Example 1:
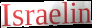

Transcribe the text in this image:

Israelin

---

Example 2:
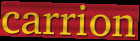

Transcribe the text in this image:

carrion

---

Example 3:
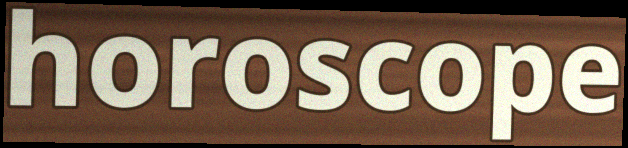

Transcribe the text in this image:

horoscope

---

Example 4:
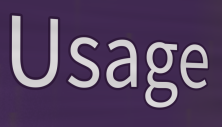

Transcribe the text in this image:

Usage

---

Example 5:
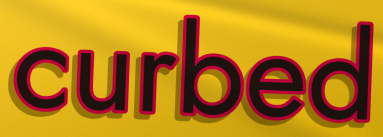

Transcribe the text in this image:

curbed